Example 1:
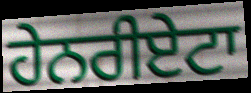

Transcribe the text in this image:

ਹੇਨਰੀਏਟਾ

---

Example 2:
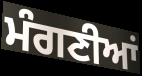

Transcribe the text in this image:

ਮੰਗਣੀਆਂ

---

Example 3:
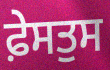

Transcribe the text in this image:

ਫ਼ੇਸਤੁਸ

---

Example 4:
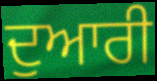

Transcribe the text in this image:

ਦੁਆਰੀ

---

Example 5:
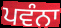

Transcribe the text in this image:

ਪਵੰਨਾ